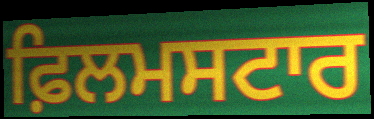
ਫ਼ਿਲਮਸਟਾਰ